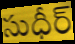
సుధీర్